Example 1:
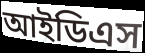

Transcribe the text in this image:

আইডিএস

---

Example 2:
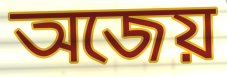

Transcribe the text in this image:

অজেয়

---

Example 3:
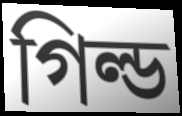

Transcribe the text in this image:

গিল্ড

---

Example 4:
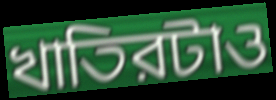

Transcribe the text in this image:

খাতিরটাও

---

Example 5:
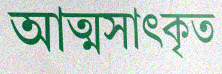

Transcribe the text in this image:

আত্মসাৎকৃত